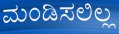
ಮಂಡಿಸಲಿಲ್ಲ